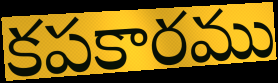
కపకారము